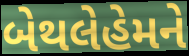
બેથલેહેમને